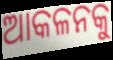
ଆକଳନକୁ